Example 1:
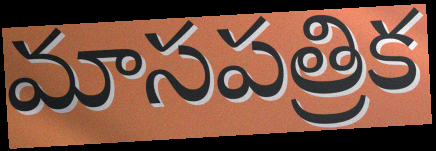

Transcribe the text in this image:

మాసపత్రిక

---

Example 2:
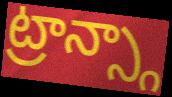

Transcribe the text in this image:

ట్రాన్స్గా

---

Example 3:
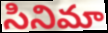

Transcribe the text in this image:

సినిమా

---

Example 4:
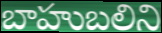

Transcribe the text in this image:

బాహుబలిని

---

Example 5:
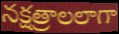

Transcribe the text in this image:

నక్షత్రాలలాగా